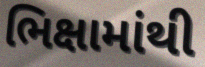
ભિક્ષામાંથી